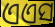
ଏଏସ